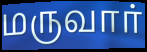
மருவார்